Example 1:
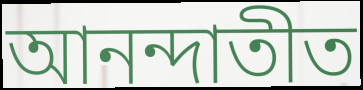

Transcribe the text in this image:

আনন্দাতীত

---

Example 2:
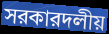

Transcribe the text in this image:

সরকারদলীয়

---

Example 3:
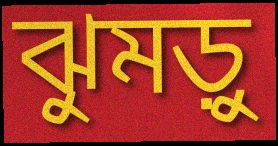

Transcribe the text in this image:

ঝুমড়ু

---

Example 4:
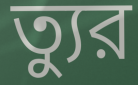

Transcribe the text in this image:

ত্যুর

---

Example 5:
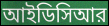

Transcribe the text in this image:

আইডিসিআর